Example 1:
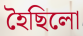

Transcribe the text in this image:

হৈছিলো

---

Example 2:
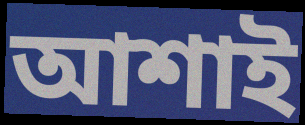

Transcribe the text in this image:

আশাই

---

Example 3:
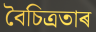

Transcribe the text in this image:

বৈচিত্ৰতাৰ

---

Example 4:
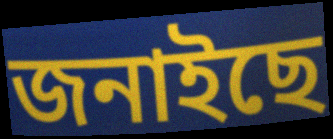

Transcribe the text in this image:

জনাইছে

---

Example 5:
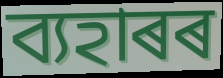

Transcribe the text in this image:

ব্যহাৰৰ